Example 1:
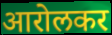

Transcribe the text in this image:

आरोलकर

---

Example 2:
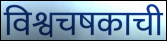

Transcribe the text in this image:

विश्वचषकाची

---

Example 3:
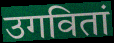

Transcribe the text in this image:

उगवितां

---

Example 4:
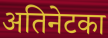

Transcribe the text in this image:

अतिनेटका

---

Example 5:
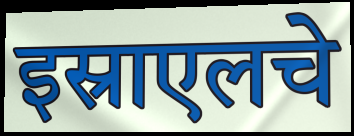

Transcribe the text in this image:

इस्राएलचे